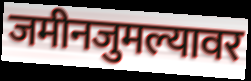
जमीनजुमल्यावर